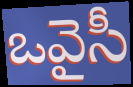
ఒవైసీ